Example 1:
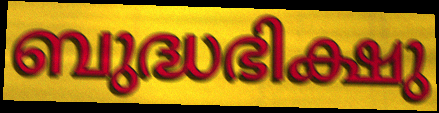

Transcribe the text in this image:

ബുദ്ധഭിക്ഷു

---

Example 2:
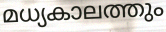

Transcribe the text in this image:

മധ്യകാലത്തും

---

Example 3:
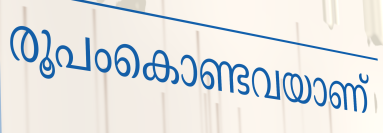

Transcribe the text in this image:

രൂപംകൊണ്ടവയാണ്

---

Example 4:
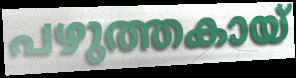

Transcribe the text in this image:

പഴുത്തകായ്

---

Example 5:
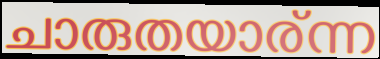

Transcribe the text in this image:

ചാരുതയാര്ന്ന